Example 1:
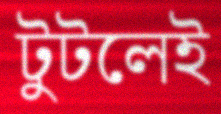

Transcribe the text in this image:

টুটলেই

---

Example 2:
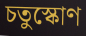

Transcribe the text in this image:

চতুস্কোণ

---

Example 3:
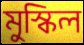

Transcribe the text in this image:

মুস্কিল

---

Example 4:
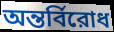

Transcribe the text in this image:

অন্তর্বিরোধ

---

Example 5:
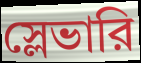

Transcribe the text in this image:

স্লেভারি